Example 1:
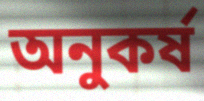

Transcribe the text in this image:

অনুকর্ষ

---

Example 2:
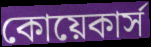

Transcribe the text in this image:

কোয়েকার্স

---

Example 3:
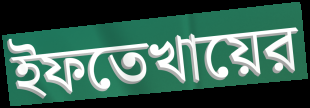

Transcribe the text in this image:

ইফতেখায়ের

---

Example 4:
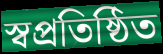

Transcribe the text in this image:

স্বপ্রতিষ্ঠিত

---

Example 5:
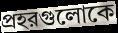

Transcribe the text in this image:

প্রহরগুলোকে